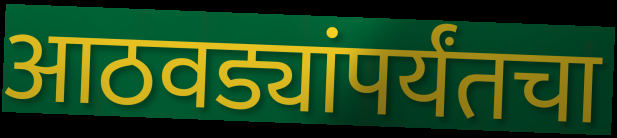
आठवड्यांपर्यंतचा